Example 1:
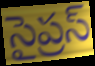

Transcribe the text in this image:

సైప్రస్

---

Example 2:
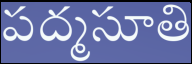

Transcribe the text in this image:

పద్మసూతి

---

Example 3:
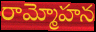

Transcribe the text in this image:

రామ్మోహన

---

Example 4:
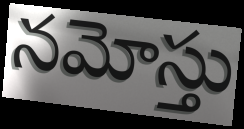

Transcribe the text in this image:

నమోస్తు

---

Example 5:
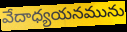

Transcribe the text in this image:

వేదాధ్యయనమును